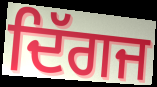
ਦਿੱਗਜ